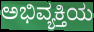
ಅಭಿವ್ಯಕ್ತಿಯ